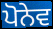
ਪੋਨੇਵ